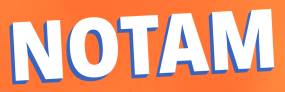
NOTAM